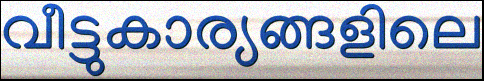
വീട്ടുകാര്യങ്ങളിലെ